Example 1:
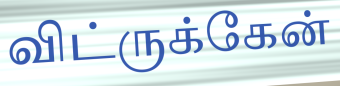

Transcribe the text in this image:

விட்ருக்கேன்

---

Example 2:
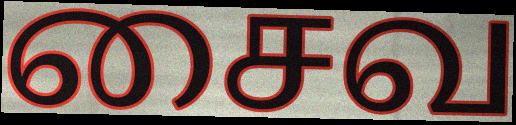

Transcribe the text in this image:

சைவ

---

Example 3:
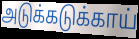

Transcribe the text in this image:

அடுக்கடுக்காய்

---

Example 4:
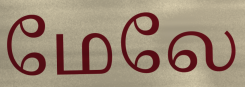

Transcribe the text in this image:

மேலே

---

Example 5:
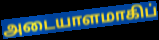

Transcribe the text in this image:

அடையாளமாகிப்